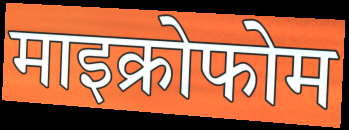
माइक्रोफोम